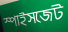
স্পাইসজেট